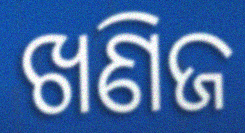
ଖଣିଜ